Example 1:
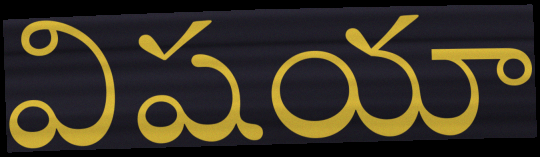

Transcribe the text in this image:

విషయా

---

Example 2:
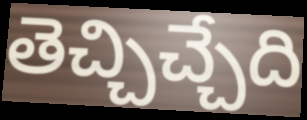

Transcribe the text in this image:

తెచ్చిచ్చేది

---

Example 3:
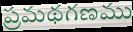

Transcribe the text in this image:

ప్రమథగణము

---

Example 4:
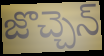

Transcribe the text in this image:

జొచ్చెన్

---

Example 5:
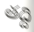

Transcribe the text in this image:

తద్ది